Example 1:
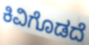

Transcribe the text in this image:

ಕಿವಿಗೊಡದೆ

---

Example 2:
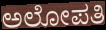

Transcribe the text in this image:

ಅಲೋಪತಿ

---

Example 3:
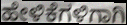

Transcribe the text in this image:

ಹೇಳಿಕೆಗಳಿಗಾಗಿ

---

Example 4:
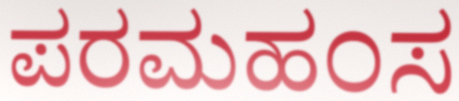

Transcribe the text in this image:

ಪರಮಹಂಸ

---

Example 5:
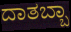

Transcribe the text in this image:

ದಾತಬ್ಬಾ